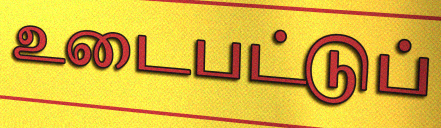
உடைபட்டுப்